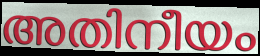
അതിനീയം